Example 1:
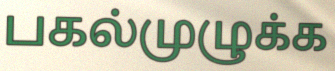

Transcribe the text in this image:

பகல்முழுக்க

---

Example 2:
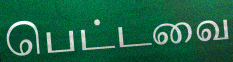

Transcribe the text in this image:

பெட்டவை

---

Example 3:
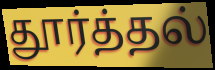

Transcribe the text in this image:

தூர்த்தல்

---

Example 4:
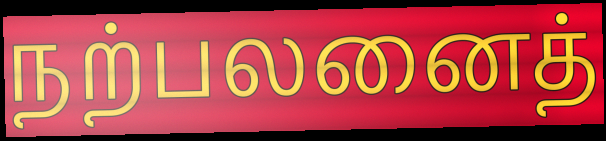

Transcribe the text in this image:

நற்பலனைத்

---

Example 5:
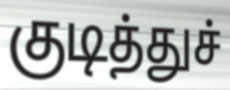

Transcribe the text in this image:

குடித்துச்